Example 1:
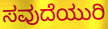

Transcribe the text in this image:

ಸವುದೆಯುರಿ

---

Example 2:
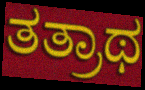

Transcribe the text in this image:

ತತ್ರಾಥ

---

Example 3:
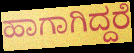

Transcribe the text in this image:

ಹಾಗಾಗಿದ್ದರೆ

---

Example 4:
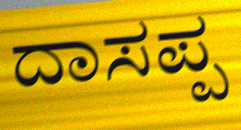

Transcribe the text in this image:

ದಾಸಪ್ಪ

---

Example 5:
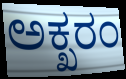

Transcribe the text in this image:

ಅಕ್ಖರಂ